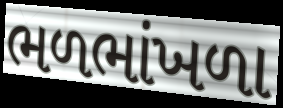
ભળભાંખળા